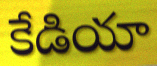
కేడియా